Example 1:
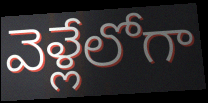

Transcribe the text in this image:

వెళ్లేలోగా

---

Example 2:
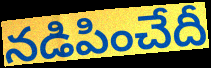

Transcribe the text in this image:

నడిపించేదీ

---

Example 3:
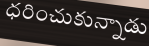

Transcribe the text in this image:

ధరించుకున్నాడు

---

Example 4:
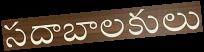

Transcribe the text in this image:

సదాబాలకులు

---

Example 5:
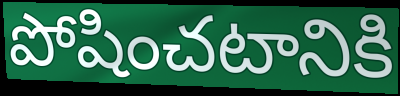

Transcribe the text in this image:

పోషించటానికి